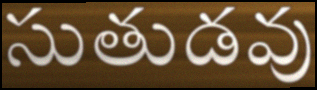
సుతుడవు